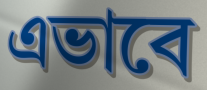
এভাবে